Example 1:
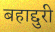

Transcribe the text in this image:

बहाद्दुरी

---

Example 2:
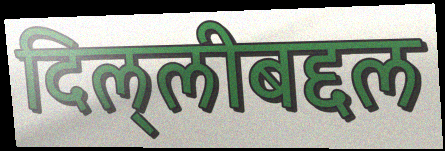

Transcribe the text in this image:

दिल्लीबद्दल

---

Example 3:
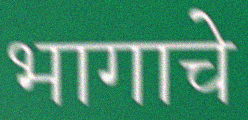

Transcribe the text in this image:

भागाचे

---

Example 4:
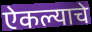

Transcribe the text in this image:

ऐकल्याचे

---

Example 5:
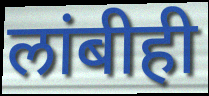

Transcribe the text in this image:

लांबीही